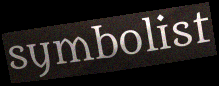
symbolist